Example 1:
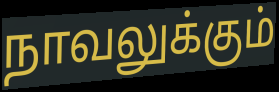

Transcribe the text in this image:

நாவலுக்கும்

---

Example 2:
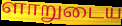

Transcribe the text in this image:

ளாறுடைய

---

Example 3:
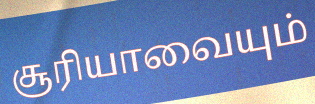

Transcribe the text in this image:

சூரியாவையும்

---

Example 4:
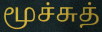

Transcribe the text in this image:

மூச்சுத்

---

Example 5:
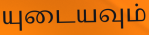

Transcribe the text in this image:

யுடையவும்